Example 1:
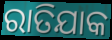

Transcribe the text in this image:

ରାତିଯାକ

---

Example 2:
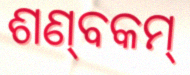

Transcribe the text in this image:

ଶଣ୍‌ବକମ୍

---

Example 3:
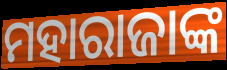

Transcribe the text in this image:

ମହାରାଜାଙ୍କ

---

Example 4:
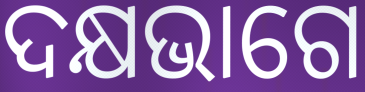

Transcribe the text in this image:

ଦକ୍ଷଭାଗେ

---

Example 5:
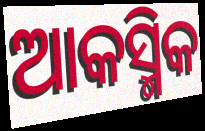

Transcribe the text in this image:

ଆକସ୍ମିକ